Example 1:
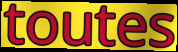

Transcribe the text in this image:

toutes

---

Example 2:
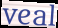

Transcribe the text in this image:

veal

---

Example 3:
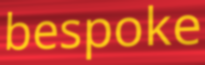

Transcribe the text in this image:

bespoke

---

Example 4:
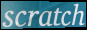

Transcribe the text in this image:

scratch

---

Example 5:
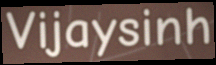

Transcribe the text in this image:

Vijaysinh